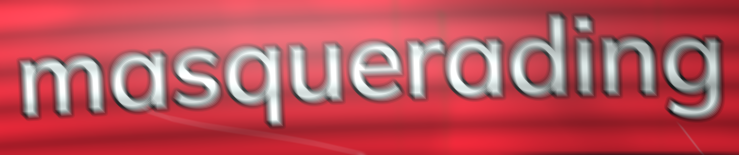
masquerading